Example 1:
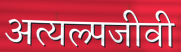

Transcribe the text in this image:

अत्यल्पजीवी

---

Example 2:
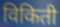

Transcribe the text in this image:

विकिती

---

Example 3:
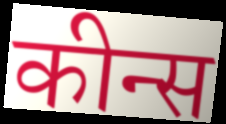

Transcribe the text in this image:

कीन्स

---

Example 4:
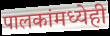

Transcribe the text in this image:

पालकांमध्येही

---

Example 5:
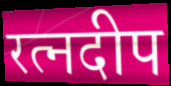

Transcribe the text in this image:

रत्नदीप